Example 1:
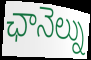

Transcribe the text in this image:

ఛానెల్ను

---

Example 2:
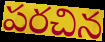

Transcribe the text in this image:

పరచిన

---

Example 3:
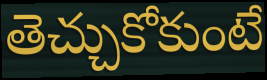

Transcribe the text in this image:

తెచ్చుకోకుంటే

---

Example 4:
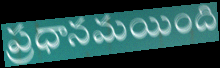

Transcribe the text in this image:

ప్రధానమయింది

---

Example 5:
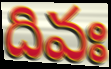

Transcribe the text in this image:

దివః